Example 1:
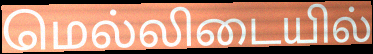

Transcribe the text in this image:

மெல்லிடையில்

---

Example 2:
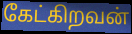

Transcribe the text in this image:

கேட்கிறவன்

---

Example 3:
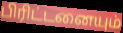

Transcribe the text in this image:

பிரிட்டனையும்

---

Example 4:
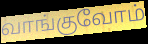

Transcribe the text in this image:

வாங்குவோம்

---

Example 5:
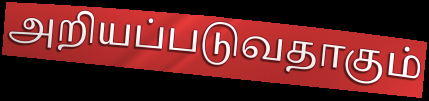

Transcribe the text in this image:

அறியப்படுவதாகும்